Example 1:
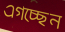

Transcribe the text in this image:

এগচ্ছেন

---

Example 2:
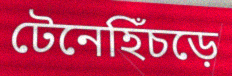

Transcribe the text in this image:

টেনেহিঁচড়ে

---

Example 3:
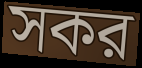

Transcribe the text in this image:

সকর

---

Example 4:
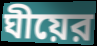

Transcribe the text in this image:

ঘীয়ের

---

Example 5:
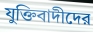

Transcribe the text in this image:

যুক্তিবাদীদের